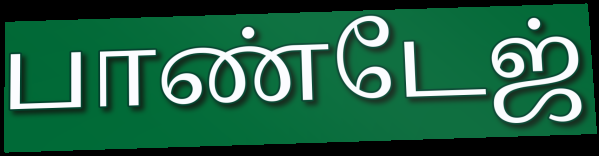
பாண்டேஜ்